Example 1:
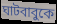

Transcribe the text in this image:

ঘাটবাবুকে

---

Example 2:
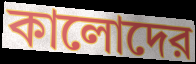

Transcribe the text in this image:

কালোদের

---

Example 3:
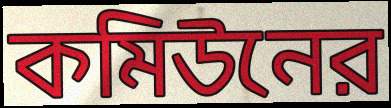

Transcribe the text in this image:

কমিউনের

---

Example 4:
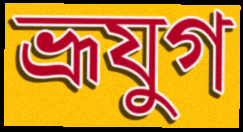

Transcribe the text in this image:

ভ্রূযুগ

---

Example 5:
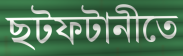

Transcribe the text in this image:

ছটফটানীতে